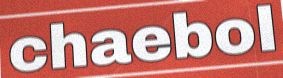
chaebol